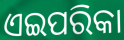
ଏଇପରିକା